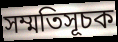
সম্মতিসূচক